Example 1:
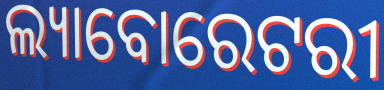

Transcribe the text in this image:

ଲ୍ୟାବୋରେଟରୀ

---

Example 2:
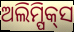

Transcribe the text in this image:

ଅଲିମ୍ପିକ୍‌ସ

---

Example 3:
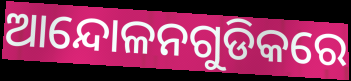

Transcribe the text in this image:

ଆନ୍ଦୋଳନଗୁଡିକରେ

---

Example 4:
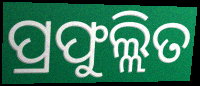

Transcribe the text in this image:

ପ୍ରଫୁଲ୍ଲିତ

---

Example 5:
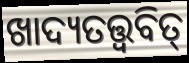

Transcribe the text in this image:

ଖାଦ୍ୟତତ୍ତ୍ୱବିତ୍